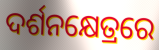
ଦର୍ଶନକ୍ଷେତ୍ରରେ